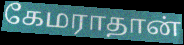
கேமராதான்